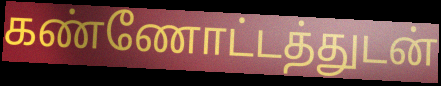
கண்ணோட்டத்துடன்